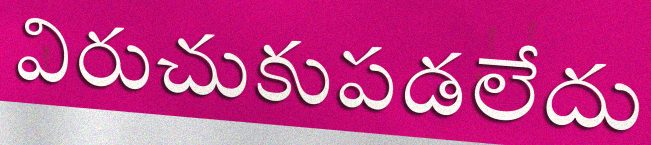
విరుచుకుపడలేదు